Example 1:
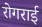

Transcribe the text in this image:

रोगराई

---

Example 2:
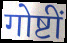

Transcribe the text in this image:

गोष्टीं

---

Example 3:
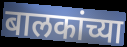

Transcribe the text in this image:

बालकांच्या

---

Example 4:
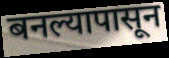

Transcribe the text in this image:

बनल्यापासून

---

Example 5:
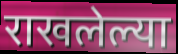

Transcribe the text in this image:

राखलेल्या